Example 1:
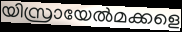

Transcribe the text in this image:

യിസ്രായേൽമക്കളെ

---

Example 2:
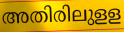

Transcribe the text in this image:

അതിരിലുളള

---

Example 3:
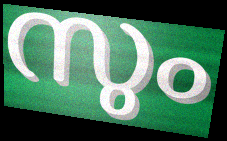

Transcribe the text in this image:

സും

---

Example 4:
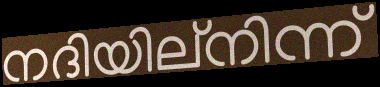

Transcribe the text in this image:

നദിയില്നിന്ന്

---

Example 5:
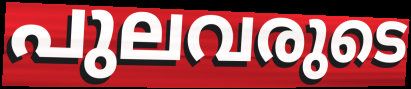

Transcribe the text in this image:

പുലവരുടെ